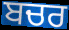
ਬਚਰ